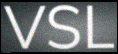
VSL